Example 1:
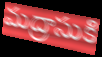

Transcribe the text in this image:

మద్రాసుకి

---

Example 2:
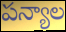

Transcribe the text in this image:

పన్యాల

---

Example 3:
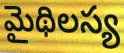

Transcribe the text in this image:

మైథిలస్య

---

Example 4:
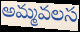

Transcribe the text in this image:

అమ్మవలస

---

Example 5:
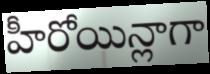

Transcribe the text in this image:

హీరోయిన్లాగా